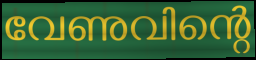
വേണുവിന്റെ